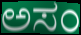
ಅಸಂ